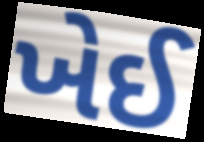
ખેઈ